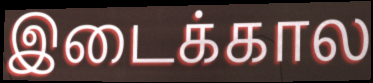
இடைக்கால